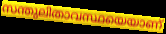
സന്തുലിതാവസ്ഥയെയാണ്